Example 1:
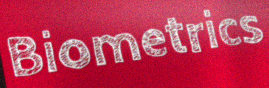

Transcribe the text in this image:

Biometrics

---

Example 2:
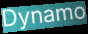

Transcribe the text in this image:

Dynamo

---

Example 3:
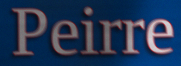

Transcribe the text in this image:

Peirre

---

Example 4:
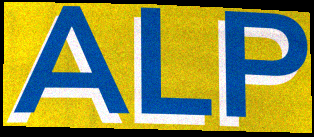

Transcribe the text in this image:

ALP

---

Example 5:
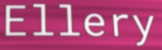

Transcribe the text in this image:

Ellery